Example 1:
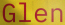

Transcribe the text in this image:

Glen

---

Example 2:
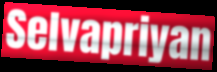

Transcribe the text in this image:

Selvapriyan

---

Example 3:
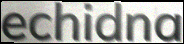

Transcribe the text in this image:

echidna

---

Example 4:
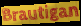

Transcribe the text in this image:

Brautigan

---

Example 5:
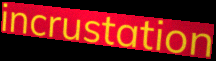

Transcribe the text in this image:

incrustation